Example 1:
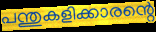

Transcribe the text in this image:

പന്തുകളിക്കാരന്റെ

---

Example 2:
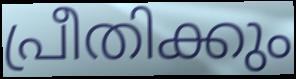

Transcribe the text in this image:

പ്രീതിക്കും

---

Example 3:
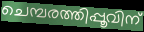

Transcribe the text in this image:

ചെമ്പരത്തിപ്പൂവിന്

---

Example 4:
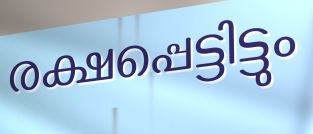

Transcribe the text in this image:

രക്ഷപ്പെട്ടിട്ടും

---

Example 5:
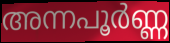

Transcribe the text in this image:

അന്നപൂർണ്ണ